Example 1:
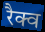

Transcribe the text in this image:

रैक्व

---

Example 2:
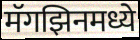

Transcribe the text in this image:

मॅगझिनमध्ये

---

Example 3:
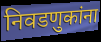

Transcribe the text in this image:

निवडणुकांना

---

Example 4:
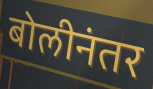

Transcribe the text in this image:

बोलीनंतर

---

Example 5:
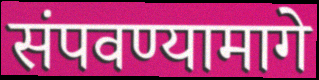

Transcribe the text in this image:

संपवण्यामागे